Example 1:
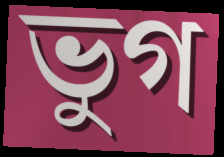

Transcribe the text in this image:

ভুগ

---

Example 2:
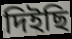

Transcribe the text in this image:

দিইছি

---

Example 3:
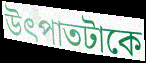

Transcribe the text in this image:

উৎপাতটাকে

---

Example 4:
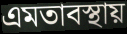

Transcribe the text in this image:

এমতাবস্থায়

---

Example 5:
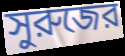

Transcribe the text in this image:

সুরুজের